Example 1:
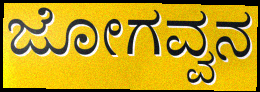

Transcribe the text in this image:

ಜೋಗವ್ವನ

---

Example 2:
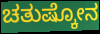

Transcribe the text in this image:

ಚತುಷ್ಕೋನ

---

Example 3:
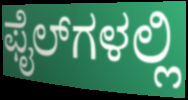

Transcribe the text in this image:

ಫೈಲ್‌ಗಳಲ್ಲಿ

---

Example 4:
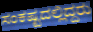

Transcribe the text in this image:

ಸಂಕಷ್ಟದಲ್ಲಿದ್ದರು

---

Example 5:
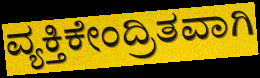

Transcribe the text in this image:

ವ್ಯಕ್ತಿಕೇಂದ್ರಿತವಾಗಿ